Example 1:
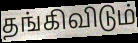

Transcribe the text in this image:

தங்கிவிடும்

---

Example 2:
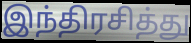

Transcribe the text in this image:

இந்திரசித்து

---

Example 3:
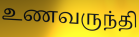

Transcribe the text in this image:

உணவருந்தி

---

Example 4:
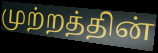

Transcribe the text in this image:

முற்றத்தின்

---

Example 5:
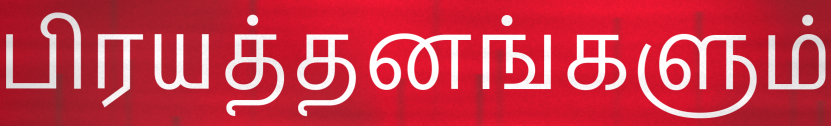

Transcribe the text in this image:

பிரயத்தனங்களும்